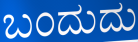
ಬಂದುದು